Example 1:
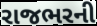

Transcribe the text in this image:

રાજભરની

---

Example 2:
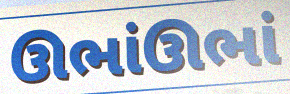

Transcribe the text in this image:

ઊભાંઊભાં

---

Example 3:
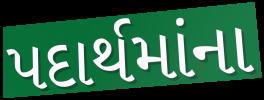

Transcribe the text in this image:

પદાર્થમાંના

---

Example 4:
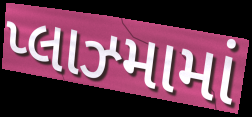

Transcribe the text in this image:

પ્લાઝ્મામાં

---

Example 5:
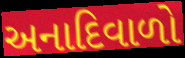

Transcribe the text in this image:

અનાદિવાળો